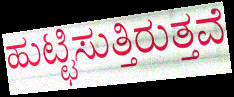
ಹುಟ್ಟಿಸುತ್ತಿರುತ್ತವೆ